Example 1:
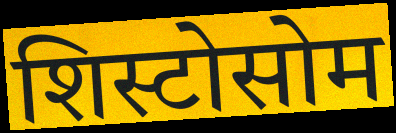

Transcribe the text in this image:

शिस्टोसोम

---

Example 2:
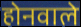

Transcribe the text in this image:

होनवाले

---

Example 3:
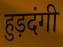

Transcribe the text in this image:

हुड़दंगी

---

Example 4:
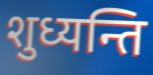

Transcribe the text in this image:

शुध्यन्ति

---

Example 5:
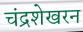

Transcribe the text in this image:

चंद्रशेखरन